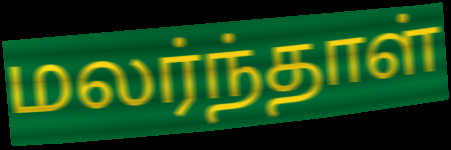
மலர்ந்தாள்